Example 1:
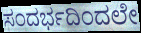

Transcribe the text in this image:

ಸಂದರ್ಭದಿಂದಲೇ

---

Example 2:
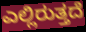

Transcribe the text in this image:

ಎಲ್ಲಿರುತ್ತದೆ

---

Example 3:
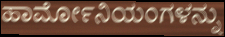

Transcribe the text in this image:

ಹಾರ್ಮೋನಿಯಂಗಳನ್ನು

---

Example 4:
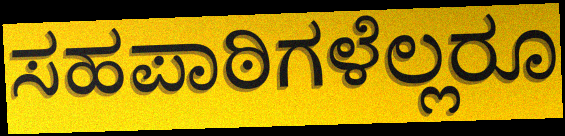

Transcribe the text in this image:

ಸಹಪಾಠಿಗಳೆಲ್ಲರೂ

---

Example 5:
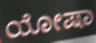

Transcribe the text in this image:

ಯೋಷಾ